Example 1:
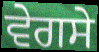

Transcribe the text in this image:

ਵੇਗਸੇ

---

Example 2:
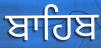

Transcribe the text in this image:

ਬਾਹਿਬ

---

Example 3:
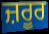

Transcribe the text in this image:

ਜ਼ਰੂਰ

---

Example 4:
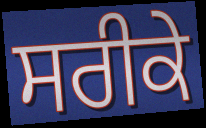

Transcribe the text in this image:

ਸਰੀਕੇ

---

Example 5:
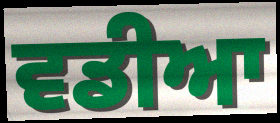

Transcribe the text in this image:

ਵਡੀਆ